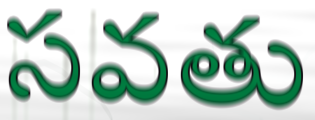
సవతు